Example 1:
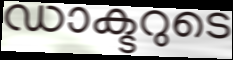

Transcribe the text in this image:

ഡാക്ടറുടെ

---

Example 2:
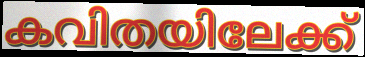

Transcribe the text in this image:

കവിതയിലേക്ക്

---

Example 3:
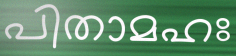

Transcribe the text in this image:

പിതാമഹഃ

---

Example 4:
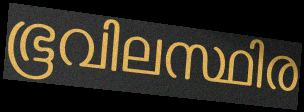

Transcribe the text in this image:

ഭൂവിലസ്ഥിര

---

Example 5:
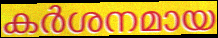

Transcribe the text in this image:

കർശനമായ